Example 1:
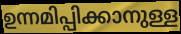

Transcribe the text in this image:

ഉന്നമിപ്പിക്കാനുള്ള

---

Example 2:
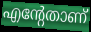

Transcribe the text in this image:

എന്റേതാണ്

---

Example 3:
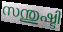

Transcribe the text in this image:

സന്തുഷ്ടി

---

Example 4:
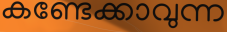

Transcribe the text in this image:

കണ്ടേക്കാവുന്ന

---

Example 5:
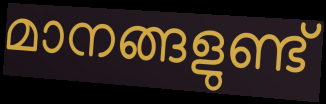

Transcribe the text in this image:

മാനങ്ങളുണ്ട്